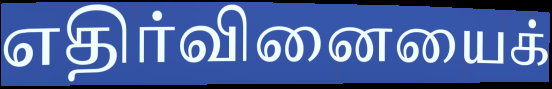
எதிர்வினையைக்